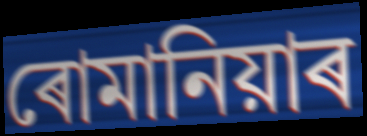
ৰোমানিয়াৰ